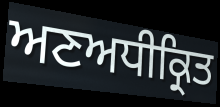
ਅਣਅਧੀਕ੍ਰਿਤ